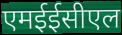
एमईईसीएल